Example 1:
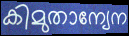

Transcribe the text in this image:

കിമുതാന്യേന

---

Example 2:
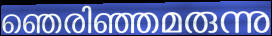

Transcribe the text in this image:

ഞെരിഞ്ഞമരുന്നു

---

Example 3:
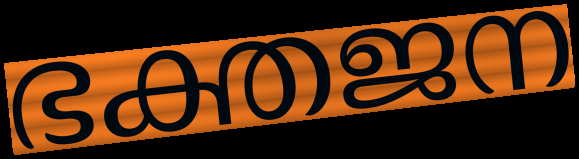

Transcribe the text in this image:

ഭക്തജന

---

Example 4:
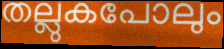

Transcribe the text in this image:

തല്ലുകപോലും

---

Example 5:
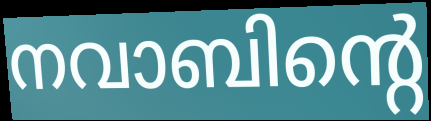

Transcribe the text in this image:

നവാബിന്റെ